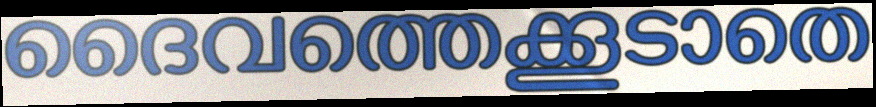
ദൈവത്തെക്കൂടാതെ